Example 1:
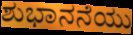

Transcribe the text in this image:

ಶುಭಾನನೆಯು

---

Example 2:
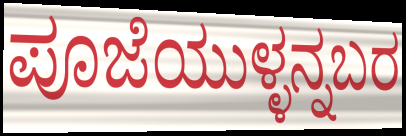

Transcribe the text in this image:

ಪೂಜೆಯುಳ್ಳನ್ನಬರ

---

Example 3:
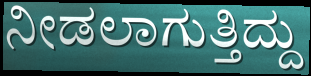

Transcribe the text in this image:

ನೀಡಲಾಗುತ್ತಿದ್ದು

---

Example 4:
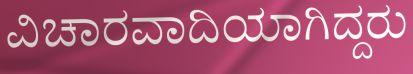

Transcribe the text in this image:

ವಿಚಾರವಾದಿಯಾಗಿದ್ದರು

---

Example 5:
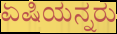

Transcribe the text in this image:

ಏಷಿಯನ್ನರು